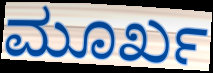
ಮೂರ್ಖ